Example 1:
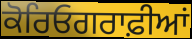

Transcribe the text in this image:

ਕੋਰਿਓਗਰਾਫ਼ੀਆਂ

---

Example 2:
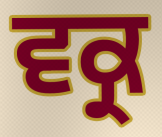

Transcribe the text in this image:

ਵਕ੍ਰ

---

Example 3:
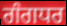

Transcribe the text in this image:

ਗੰਗਧਰ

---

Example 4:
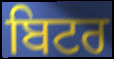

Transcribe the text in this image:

ਬਿਟਰ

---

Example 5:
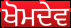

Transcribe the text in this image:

ਖੋਮਦੇਵ